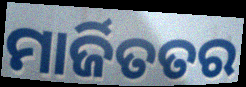
ମାର୍ଜିତତର